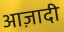
आज़ादी